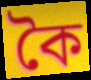
কৈ